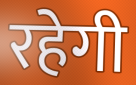
रहेगी